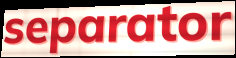
separator